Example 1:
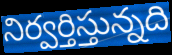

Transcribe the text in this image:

నిర్వర్తిస్తున్నది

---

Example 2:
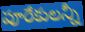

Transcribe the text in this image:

పూరేకులన్నీ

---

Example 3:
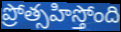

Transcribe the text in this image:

ప్రోత్సహిస్తోంది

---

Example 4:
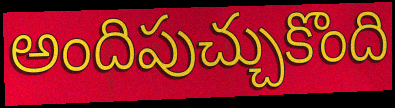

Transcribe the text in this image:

అందిపుచ్చుకొంది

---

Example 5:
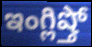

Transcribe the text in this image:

ఇంగ్లిష్తో